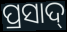
ପ୍ରସାଦ୍